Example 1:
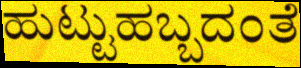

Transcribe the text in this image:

ಹುಟ್ಟುಹಬ್ಬದಂತೆ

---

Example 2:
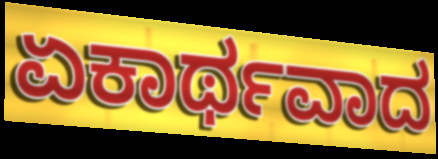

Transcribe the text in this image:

ಏಕಾರ್ಥವಾದ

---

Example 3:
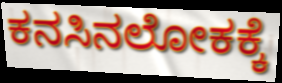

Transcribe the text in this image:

ಕನಸಿನಲೋಕಕ್ಕೆ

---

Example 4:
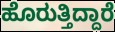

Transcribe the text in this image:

ಹೊರುತ್ತಿದ್ದಾರೆ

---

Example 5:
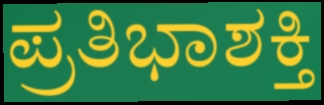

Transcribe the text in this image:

ಪ್ರತಿಭಾಶಕ್ತಿ